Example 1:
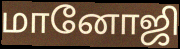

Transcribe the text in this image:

மானோஜி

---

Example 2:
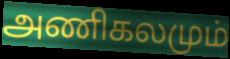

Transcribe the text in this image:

அணிகலமும்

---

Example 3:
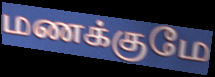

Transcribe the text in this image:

மணக்குமே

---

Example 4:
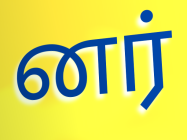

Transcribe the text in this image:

னர்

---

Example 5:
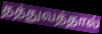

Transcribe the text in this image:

தத்துவத்தால்